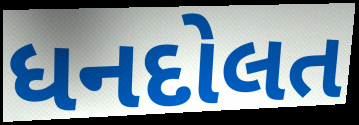
ધનદોલત